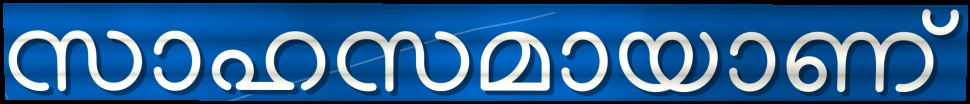
സാഹസമായാണ്